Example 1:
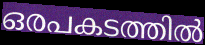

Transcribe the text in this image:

ഒരപകടത്തിൽ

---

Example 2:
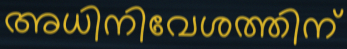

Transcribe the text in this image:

അധിനിവേശത്തിന്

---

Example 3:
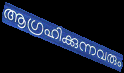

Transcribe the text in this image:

ആഗ്രഹിക്കുന്നവരും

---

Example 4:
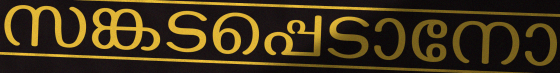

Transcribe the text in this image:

സങ്കടപ്പെടാനോ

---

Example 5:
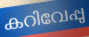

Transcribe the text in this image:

കറിവേപ്പു